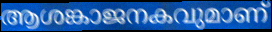
ആശങ്കാജനകവുമാണ്